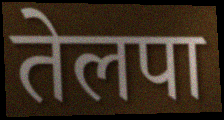
तेलपा